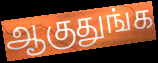
ஆகுதுங்க